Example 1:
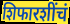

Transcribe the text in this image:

शिफारशींचं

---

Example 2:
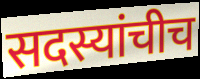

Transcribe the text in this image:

सदस्यांचीच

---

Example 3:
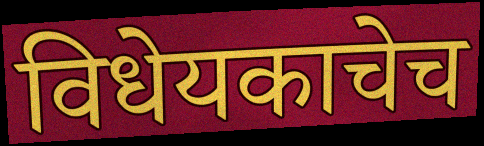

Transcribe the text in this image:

विधेयकाचेच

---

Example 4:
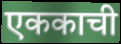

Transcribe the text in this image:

एककाची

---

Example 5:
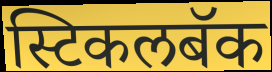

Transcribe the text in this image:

स्टिकलबॅक